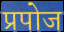
प्रपोज